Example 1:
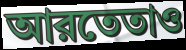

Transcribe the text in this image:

আরতেতাও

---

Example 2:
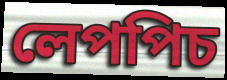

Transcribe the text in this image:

লেপপিচ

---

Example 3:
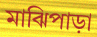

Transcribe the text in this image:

মাঝিপাড়া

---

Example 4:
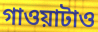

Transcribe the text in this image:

গাওয়াটাও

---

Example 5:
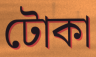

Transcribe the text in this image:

টোকা